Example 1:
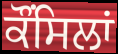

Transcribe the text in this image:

ਕੌਂਸਿਲਾਂ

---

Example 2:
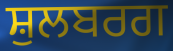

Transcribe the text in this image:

ਸ਼ੁਲਬਰਗ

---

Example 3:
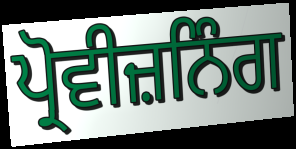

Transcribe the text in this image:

ਪ੍ਰੋਵੀਜ਼ਨਿੰਗ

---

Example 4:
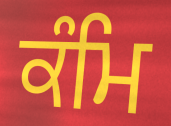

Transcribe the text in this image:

ਕੰਮਿ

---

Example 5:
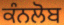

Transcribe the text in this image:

ਕੰਨਲੋਬ